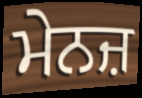
ਮੇਨਜ਼